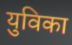
युविका